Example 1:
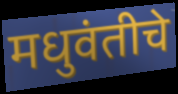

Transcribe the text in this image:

मधुवंतीचे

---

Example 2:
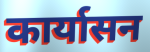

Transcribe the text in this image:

कार्यासन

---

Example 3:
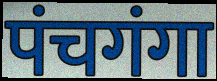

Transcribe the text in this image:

पंचगंगा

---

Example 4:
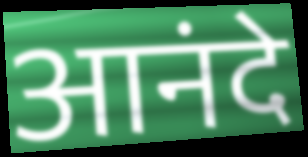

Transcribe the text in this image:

आनंदे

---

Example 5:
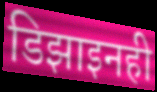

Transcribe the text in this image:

डिझाइनही